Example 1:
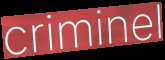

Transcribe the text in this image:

criminel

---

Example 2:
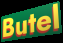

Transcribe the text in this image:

Butel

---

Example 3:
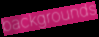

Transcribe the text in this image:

backgrounds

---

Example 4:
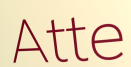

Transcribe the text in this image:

Atte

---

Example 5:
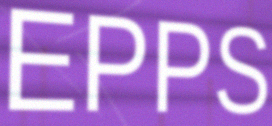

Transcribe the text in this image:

EPPS